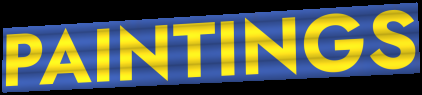
PAINTINGS